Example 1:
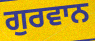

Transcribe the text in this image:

ਗੁਰਵਾਨ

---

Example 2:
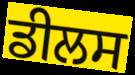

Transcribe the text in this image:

ਡੀਲਸ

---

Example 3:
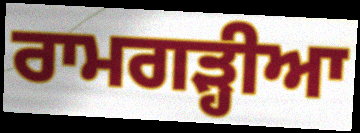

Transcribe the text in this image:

ਰਾਮਗਡ਼੍ਹੀਆ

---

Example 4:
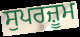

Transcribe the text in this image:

ਸੁਪਰਜ਼ੂਮ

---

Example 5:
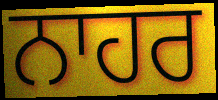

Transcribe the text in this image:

ਨਾਹਰ